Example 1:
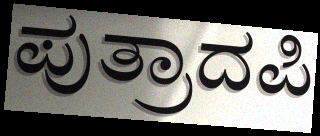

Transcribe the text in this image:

ಪುತ್ರಾದಪಿ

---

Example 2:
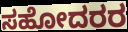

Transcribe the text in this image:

ಸಹೋದರರ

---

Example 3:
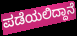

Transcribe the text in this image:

ಪಡೆಯಲಿದ್ದಾನೆ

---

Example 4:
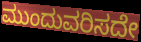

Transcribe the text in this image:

ಮುಂದುವರಿಸದೇ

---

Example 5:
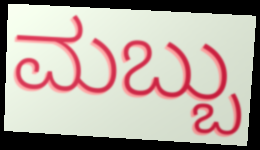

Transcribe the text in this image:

ಮಬ್ಬು